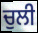
ਚੁਲੀ